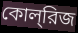
কোল্‌রিজ